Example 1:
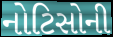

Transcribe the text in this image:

નોટિસોની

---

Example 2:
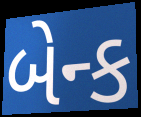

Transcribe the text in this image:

બેન્ક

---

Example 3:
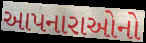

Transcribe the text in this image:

આપનારાઓનો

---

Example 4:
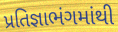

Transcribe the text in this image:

પ્રતિજ્ઞાભંગમાંથી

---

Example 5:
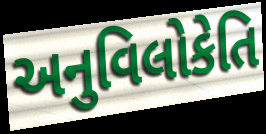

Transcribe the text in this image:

અનુવિલોકેતિ